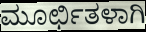
ಮೂರ್ಛಿತಳಾಗಿ